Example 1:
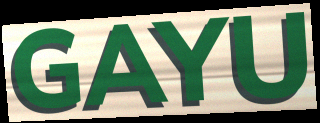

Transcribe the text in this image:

GAYU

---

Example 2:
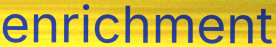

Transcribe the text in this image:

enrichment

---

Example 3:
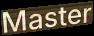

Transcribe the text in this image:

Master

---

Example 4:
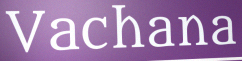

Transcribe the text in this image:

Vachana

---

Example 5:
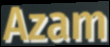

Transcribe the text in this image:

Azam